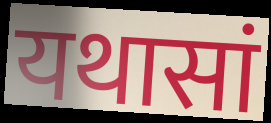
यथासां